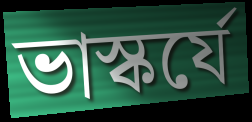
ভাস্কর্যে